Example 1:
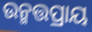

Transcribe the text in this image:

ଉନ୍ମତ୍ତପ୍ରାୟ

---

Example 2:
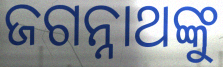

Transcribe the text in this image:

ଜଗନ୍ନାଥଙ୍କୁ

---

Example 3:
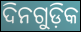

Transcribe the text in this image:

ଦିନଗୁଡ଼ିକ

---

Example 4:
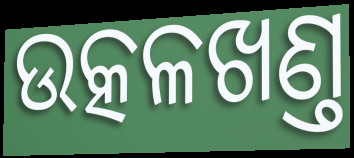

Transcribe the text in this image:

ଉତ୍କଳଖଣ୍ତ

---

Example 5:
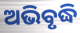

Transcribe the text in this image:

ଅଭିବୃଦ୍ଧି